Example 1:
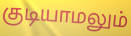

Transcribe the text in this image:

குடியாமலும்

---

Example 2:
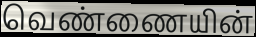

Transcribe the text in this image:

வெண்ணையின்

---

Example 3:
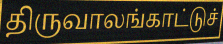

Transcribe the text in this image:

திருவாலங்காட்டுச்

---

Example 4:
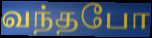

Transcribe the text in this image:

வந்தபோ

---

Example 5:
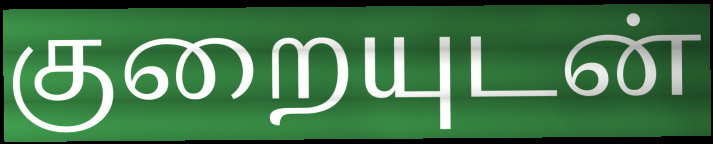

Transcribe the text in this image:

குறையுடன்